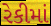
રેકીમાં